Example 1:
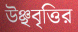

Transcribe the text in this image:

উঞ্ছবৃত্তির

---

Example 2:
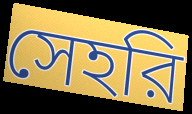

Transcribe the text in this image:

সেহরি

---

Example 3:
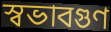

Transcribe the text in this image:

স্বভাবগুণ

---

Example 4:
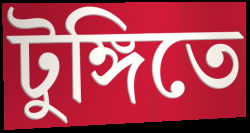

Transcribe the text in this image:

টুঙ্গিতে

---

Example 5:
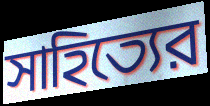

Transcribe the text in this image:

সাহিত্যের